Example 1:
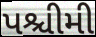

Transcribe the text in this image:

પશ્ચીમી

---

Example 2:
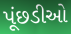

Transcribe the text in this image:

પૂંછડીઓ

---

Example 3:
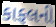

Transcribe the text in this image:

કાફલની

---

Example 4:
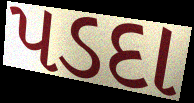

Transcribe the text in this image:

પડદા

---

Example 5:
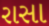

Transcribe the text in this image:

રાસા